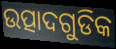
ଉତ୍ପାଦଗୁଡିକ